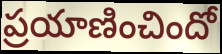
ప్రయాణించిందో